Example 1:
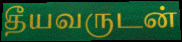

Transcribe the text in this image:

தீயவருடன்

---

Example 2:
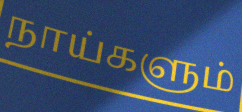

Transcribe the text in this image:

நாய்களும்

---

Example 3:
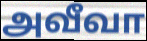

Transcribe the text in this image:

அவீவா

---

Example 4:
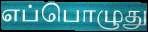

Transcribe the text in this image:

எப்பொழுது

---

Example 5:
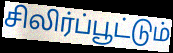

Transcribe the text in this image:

சிலிர்ப்பூட்டும்